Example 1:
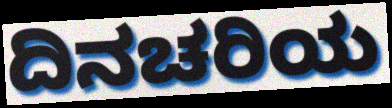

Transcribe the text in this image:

ದಿನಚರಿಯ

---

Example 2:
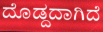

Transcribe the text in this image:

ದೊಡ್ದದಾಗಿದೆ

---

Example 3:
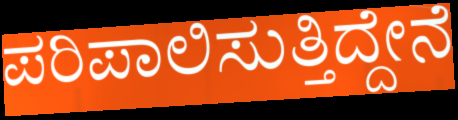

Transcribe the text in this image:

ಪರಿಪಾಲಿಸುತ್ತಿದ್ದೇನೆ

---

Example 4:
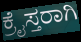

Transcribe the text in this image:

ಕ್ರೈಸ್ತರಾಗಿ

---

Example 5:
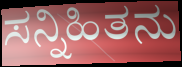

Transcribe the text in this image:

ಸನ್ನಿಹಿತನು